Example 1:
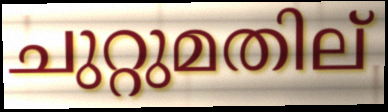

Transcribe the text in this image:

ചുറ്റുമതില്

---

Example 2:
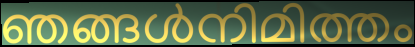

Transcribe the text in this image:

ഞങ്ങൾനിമിത്തം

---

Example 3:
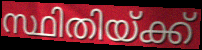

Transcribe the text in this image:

സ്ഥിതിയ്ക്ക്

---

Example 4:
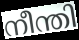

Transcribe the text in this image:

നീന്തി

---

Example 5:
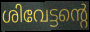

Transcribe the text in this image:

ശിവേട്ടന്റെ